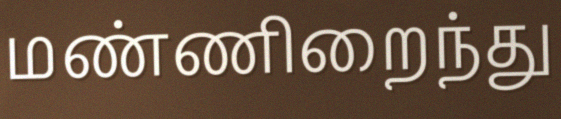
மண்ணிறைந்து